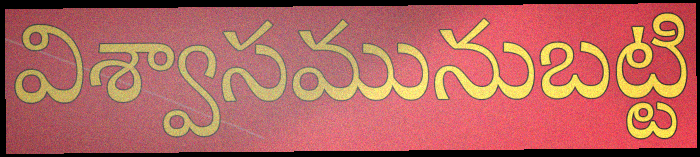
విశ్వాసమునుబట్టి